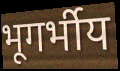
भूगर्भीय